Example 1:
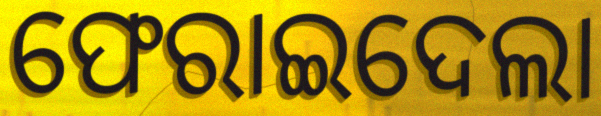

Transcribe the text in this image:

ଫେରାଇଦେଲା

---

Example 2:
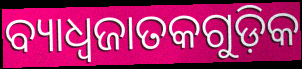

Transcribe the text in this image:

ବ୍ୟାଧ୍ଵଜାତକଗୁଡ଼ିକ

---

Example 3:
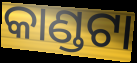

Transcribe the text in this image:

କାଣ୍ଡଟା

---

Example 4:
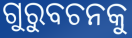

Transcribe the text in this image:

ଗୁରୁବଚନକୁ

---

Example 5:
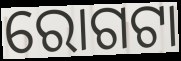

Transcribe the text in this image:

ରୋଗଟା